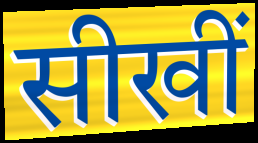
सीखीं